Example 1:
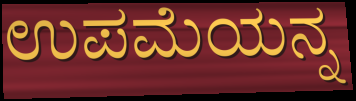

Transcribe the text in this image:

ಉಪಮೆಯನ್ನ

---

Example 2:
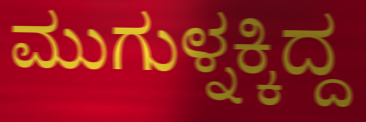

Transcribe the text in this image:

ಮುಗುಳ್ನಕ್ಕಿದ್ದ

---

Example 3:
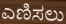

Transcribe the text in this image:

ಎಣಿಸಲು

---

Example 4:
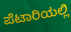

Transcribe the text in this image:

ಪೆಟಾರಿಯಲ್ಲಿ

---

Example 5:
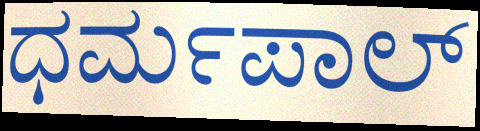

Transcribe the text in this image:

ಧರ್ಮಪಾಲ್